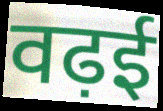
वढ़ई